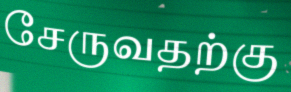
சேருவதற்கு